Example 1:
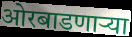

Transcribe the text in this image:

ओरबाडणाऱ्या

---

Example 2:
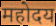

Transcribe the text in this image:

महोदय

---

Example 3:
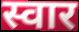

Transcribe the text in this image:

स्वार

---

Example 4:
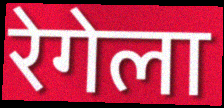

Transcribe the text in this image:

रेगेला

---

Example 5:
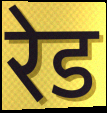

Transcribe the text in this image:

रेड